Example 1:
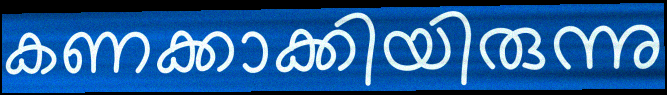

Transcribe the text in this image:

കണക്കാക്കിയിരുന്നു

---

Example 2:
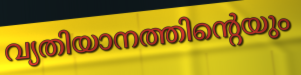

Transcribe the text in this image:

വ്യതിയാനത്തിന്റെയും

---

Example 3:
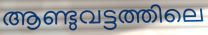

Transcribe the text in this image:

ആണ്ടുവട്ടത്തിലെ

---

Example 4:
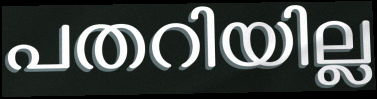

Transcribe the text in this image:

പതറിയില്ല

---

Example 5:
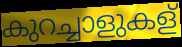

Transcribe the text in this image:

കുറച്ചാളുകള്